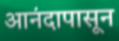
आनंदापासून